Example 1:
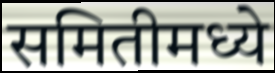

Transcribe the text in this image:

समितीमध्ये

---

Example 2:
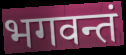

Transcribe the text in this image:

भगवन्तं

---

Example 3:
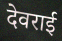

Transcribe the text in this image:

देवराई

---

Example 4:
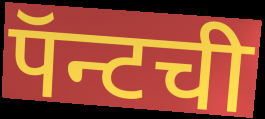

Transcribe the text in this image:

पॅन्टची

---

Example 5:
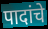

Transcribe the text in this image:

पादांचे